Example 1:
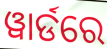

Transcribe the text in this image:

ୱାର୍ଡରେ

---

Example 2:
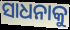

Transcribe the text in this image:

ସାଧନାକୁ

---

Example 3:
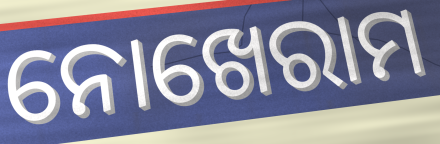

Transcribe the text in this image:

ନୋଖେରାମ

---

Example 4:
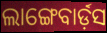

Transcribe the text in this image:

ଲାଙ୍ଗେବାର୍ଡ଼ସ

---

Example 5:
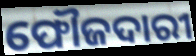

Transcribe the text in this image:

ଫୌଜଦାରୀ